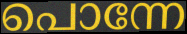
പൊന്നേ